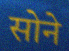
सोने